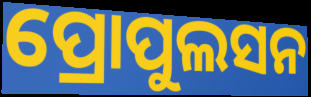
ପ୍ରୋପୁଲସନ